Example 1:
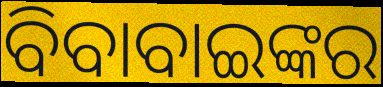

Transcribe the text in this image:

ବିବାବାଇଙ୍କର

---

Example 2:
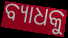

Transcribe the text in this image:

ବ୍ୟାଧକୁ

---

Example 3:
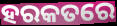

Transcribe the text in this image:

ହରକତରେ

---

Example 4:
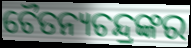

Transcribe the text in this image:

ଚୈତନ୍ୟଚନ୍ଦ୍ରଙ୍କର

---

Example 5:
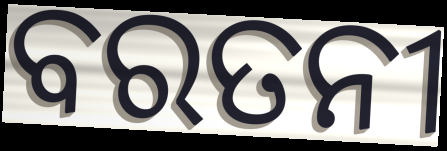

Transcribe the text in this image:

ବରତନୀ